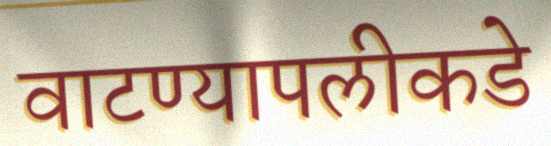
वाटण्यापलीकडे